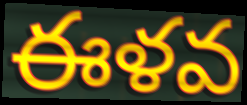
ఈళవ